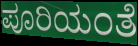
ಪೂರಿಯಂತೆ